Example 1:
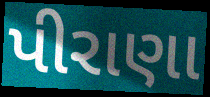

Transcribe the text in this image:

પીરાણા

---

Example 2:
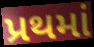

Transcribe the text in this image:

પ્રથમાં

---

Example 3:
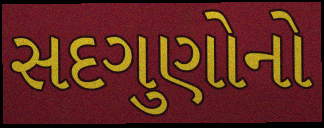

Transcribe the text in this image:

સદગુણોનો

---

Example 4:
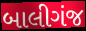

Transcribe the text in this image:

બાલીગંજ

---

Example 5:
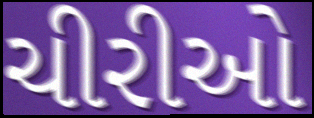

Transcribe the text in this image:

ચીરીઓ